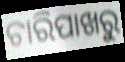
ଚାରିପାଖରୁ